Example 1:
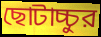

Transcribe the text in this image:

ছোটাচ্চুর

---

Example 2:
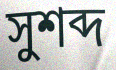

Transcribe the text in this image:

সুশব্দ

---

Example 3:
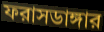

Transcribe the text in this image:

ফরাসডাঙ্গার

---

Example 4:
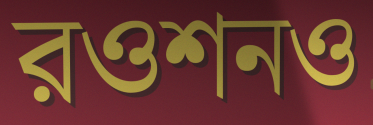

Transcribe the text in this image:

রওশনও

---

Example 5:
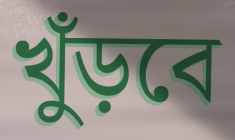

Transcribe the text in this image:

খুঁড়বে